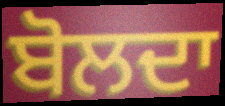
ਬੋਲਦਾ